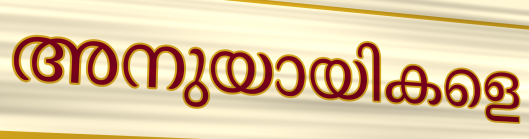
അനുയായികളെ